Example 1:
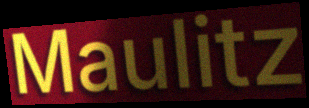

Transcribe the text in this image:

Maulitz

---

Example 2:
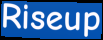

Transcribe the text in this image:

Riseup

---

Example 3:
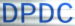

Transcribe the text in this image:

DPDC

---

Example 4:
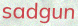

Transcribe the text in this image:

sadgun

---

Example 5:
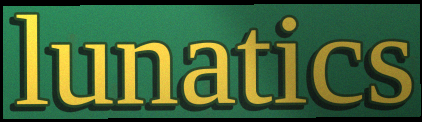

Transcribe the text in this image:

lunatics